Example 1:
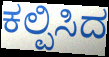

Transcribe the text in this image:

ಕಲ್ಪಿಸಿದ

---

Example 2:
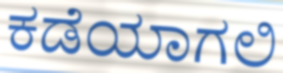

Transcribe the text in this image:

ಕಡೆಯಾಗಲಿ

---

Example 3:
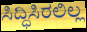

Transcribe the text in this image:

ಸಿದ್ಧಿಸಿರಲಿಲ್ಲ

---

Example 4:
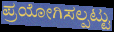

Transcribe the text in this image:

ಪ್ರಯೋಗಿಸಲ್ಪಟ್ಟು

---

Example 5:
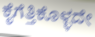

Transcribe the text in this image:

ಕೈಗೆತ್ತಿಕೊಳ್ಳದೇ